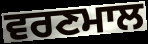
ਵਰਣਮਾਲ